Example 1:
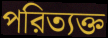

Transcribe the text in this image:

পরিত্যক্ত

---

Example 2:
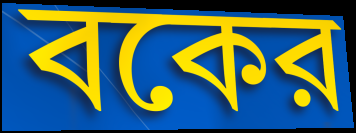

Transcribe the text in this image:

বকের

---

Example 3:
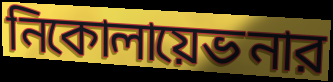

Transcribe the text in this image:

নিকোলায়েভনার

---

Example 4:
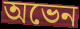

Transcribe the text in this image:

অভেন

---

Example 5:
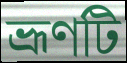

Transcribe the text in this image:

ভ্রূণটি